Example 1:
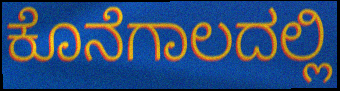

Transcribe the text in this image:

ಕೊನೆಗಾಲದಲ್ಲಿ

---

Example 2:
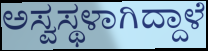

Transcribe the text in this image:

ಅಸ್ವಸ್ಥಳಾಗಿದ್ದಾಳೆ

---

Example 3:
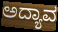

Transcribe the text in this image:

ಅದ್ಯಾವ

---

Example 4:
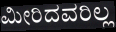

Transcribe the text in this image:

ಮೀರಿದವರಿಲ್ಲ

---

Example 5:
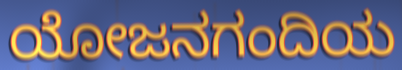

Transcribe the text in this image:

ಯೋಜನಗಂದಿಯ